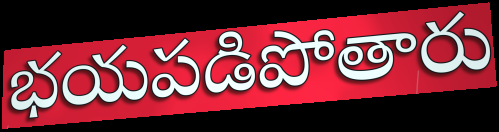
భయపడిపోతారు